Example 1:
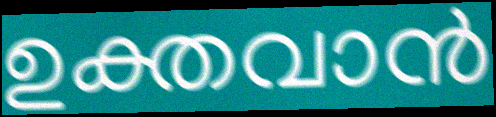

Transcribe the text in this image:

ഉക്തവാൻ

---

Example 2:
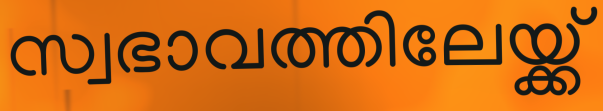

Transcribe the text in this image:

സ്വഭാവത്തിലേയ്ക്ക്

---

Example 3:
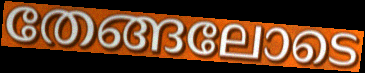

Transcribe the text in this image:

തേങ്ങലോടെ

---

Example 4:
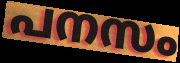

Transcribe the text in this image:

പനസം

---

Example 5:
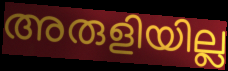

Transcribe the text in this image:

അരുളിയില്ല